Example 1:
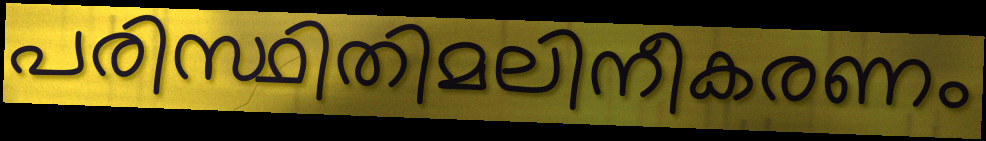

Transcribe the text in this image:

പരിസ്ഥിതിമലിനീകരണം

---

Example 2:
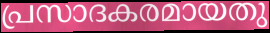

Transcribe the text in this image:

പ്രസാദകരമായതു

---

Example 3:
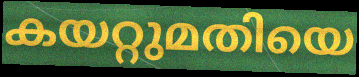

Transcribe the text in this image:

കയറ്റുമതിയെ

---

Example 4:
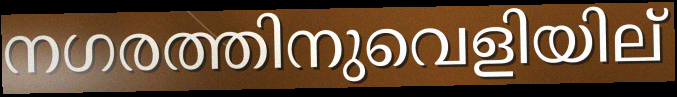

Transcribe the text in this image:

നഗരത്തിനുവെളിയില്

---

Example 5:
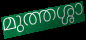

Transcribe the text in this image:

മുത്തശ്ശാ